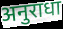
अनुराधा